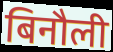
बिनौली